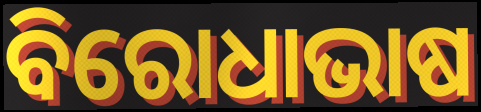
ବିରୋଧାଭାଷ